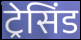
ट्रेसिंड